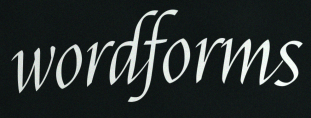
wordforms